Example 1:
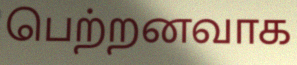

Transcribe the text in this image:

பெற்றனவாக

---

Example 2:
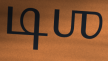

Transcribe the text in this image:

டிஶ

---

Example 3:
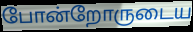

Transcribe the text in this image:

போன்றோருடைய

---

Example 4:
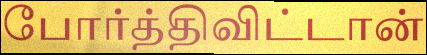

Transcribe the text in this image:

போர்த்திவிட்டான்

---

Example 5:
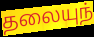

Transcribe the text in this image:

தலையுந்